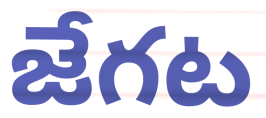
జేగట